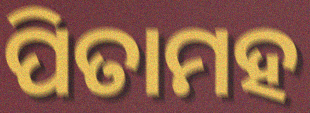
ପିତାମହ